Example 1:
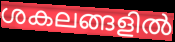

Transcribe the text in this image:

ശകലങ്ങളിൽ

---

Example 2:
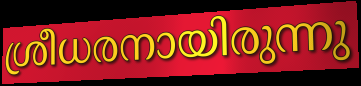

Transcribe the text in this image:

ശ്രീധരനായിരുന്നു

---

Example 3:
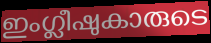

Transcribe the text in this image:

ഇംഗ്ലീഷുകാരുടെ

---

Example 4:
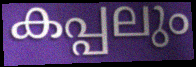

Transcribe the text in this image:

കപ്പലും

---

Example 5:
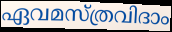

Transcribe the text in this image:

ഏവമസ്ത്രവിദാം